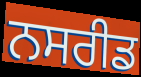
ਨਸਰੀਡ